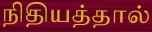
நிதியத்தால்